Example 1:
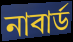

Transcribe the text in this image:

নাবার্ড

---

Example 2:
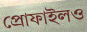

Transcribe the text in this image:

প্রোফাইলও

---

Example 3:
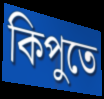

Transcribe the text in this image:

কিপুতে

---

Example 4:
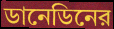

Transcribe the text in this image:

ডানেডিনের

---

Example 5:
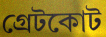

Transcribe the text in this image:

গ্রেটকোট